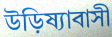
উড়িষ্যাবাসী